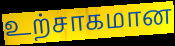
உற்சாகமான